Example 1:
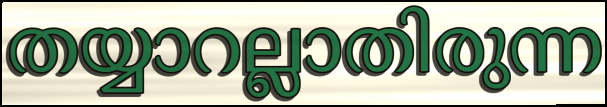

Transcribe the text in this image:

തയ്യാറല്ലാതിരുന്ന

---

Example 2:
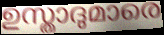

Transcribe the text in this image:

ഉസ്താദുമാരെ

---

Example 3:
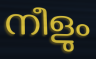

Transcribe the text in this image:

നീളും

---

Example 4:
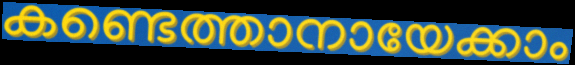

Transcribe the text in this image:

കണ്ടെത്താനായേക്കാം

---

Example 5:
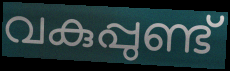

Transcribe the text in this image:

വകുപ്പുണ്ട്